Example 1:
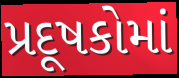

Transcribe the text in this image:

પ્રદૂષકોમાં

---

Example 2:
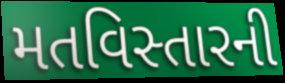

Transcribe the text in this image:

મતવિસ્તારની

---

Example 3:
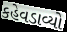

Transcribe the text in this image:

કહેવડાવ્યો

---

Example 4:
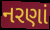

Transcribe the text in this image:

નરણાં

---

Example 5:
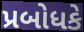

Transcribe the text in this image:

પ્રબોધકે